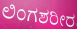
ಲಿಂಗಶರೀರ